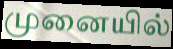
முனையில்